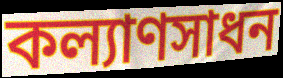
কল্যাণসাধন